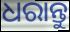
ଧରାନ୍ତୁ